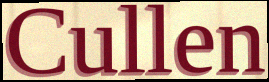
Cullen